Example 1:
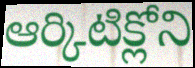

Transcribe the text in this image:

ఆర్కిటిక్లోని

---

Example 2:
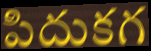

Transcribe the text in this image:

పిదుకగ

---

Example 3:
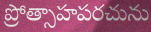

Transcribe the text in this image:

ప్రోత్సాహపరచును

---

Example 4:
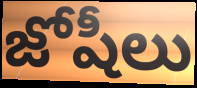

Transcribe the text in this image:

జోషీలు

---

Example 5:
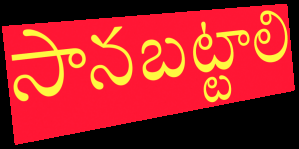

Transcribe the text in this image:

సానబట్టాలి